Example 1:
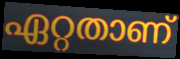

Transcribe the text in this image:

ഏറ്റതാണ്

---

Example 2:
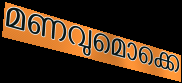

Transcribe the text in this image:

മണവുമൊക്കെ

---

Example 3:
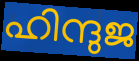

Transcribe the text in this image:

ഹിന്ദുജ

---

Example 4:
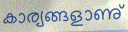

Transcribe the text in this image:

കാര്യങ്ങളാണു്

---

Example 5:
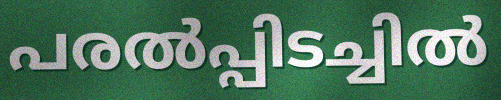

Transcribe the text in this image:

പരൽപ്പിടച്ചിൽ